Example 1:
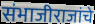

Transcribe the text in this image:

संभाजीराजांचे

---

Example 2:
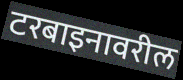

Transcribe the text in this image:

टरबाइनावरील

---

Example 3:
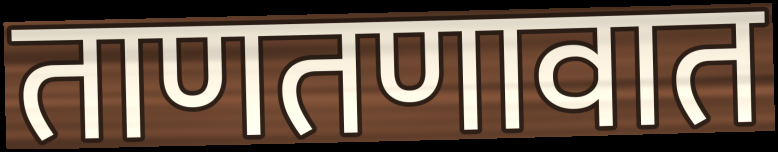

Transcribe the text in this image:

ताणतणावात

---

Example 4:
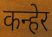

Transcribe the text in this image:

कन्हेर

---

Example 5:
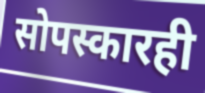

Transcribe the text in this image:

सोपस्कारही